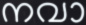
നവാ